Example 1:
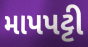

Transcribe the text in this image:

માપપટ્ટી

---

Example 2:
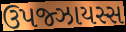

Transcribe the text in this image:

ઉપજ્ઝાયસ્સ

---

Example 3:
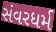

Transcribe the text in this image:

સંવરધર્મ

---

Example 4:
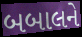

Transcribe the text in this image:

બબાલને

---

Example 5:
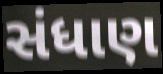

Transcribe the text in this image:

સંધાણ